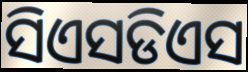
ସିଏସଡିଏସ